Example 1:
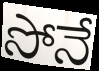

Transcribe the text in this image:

సోనే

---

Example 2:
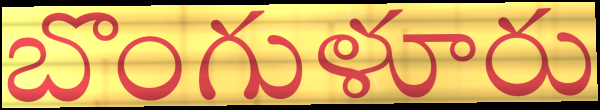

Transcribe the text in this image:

బొంగుళూరు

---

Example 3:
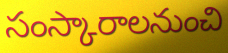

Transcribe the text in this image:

సంస్కారాలనుంచి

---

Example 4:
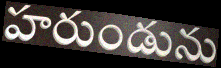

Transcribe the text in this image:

హరుండును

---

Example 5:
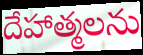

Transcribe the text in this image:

దేహాత్మలను